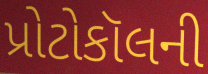
પ્રોટોકૉલની